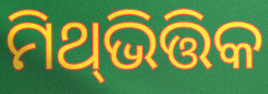
ମିଥ୍‍ଭିତ୍ତିକ